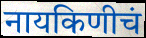
नायकिणीचं